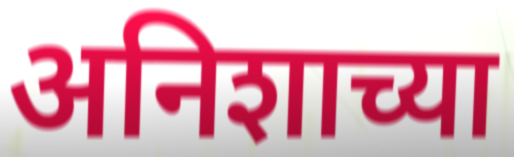
अनिशाच्या